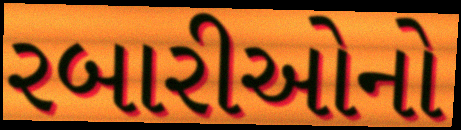
રબારીઓનો